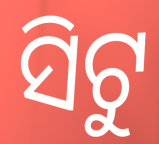
ସିଟୁ